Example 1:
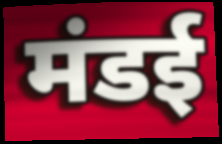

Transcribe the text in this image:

मंडई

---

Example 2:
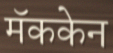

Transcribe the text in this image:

मॅककेन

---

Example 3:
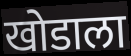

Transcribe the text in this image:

खोडाला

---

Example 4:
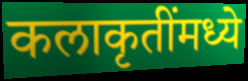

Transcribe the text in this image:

कलाकृतींमध्ये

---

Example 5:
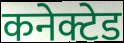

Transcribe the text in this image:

कनेक्टेड